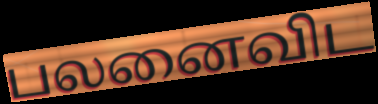
பலனைவிட